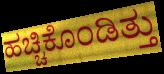
ಹಚ್ಚಿಕೊಂಡಿತ್ತು